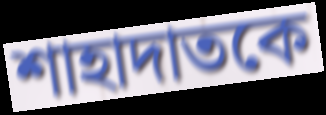
শাহাদাতকে